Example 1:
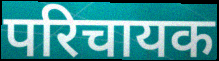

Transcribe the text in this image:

परिचायक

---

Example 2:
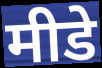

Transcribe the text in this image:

मीडे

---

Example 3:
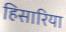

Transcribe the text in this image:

हिसारिया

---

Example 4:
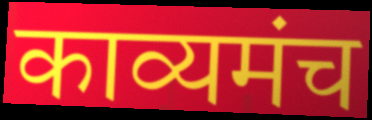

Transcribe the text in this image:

काव्यमंच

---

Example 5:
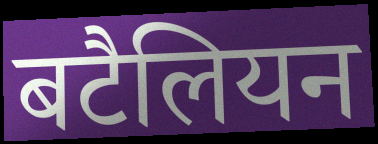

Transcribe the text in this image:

बटैलियन